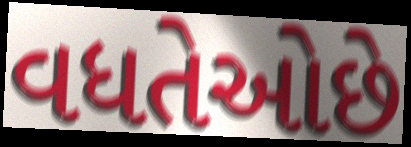
વધતેઓછે